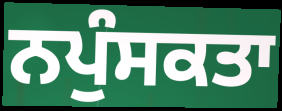
ਨਪੁੰਸਕਤਾ